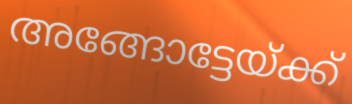
അങ്ങോട്ടേയ്ക്ക്